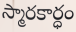
స్మారకార్ధం